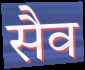
सैव